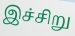
இச்சிறு